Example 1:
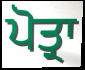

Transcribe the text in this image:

ਪੋਤ੍ਰਾ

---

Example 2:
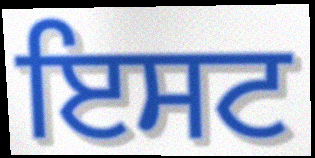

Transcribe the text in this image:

ਇਸਟ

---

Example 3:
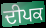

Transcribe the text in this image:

ਦੀਪਕ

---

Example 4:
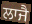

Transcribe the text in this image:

ਲਾਜੈ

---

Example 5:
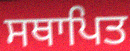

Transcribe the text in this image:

ਸਥਾਪਿਤ